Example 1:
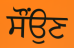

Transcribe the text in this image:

ਸੌਂਉਣ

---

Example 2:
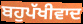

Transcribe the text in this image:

ਬਹੁਪੱਖੀਵਾਦ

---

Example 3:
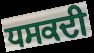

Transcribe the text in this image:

ਧਸਕਦੀ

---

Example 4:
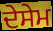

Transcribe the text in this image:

ਦੇਸੇਮ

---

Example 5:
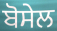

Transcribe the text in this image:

ਬੋਸੇਲ